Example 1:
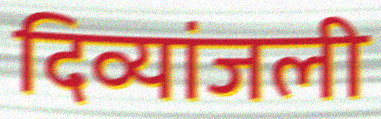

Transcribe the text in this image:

दिव्यांजली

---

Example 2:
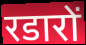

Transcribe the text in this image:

रडारों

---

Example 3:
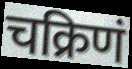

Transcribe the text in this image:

चक्रिणं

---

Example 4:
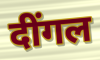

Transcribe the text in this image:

दींगल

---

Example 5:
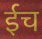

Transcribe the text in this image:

ईच